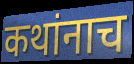
कथांनाच